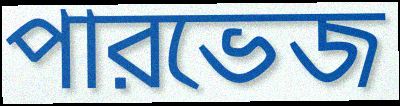
পারভেজ